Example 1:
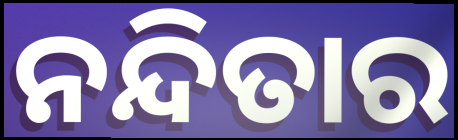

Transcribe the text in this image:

ନନ୍ଦିତାର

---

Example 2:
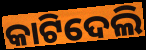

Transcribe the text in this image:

କାଟିଦେଲି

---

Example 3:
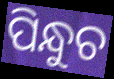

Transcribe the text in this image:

ପିନ୍ଧୁଚ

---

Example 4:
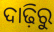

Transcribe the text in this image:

ଦାଢ଼ିରୁ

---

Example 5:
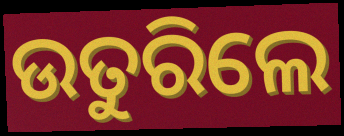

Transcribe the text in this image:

ଉତୁରିଲେ